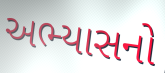
અભ્યાસનો